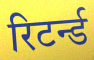
रिटर्न्ड